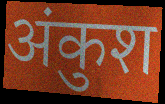
अंकुश